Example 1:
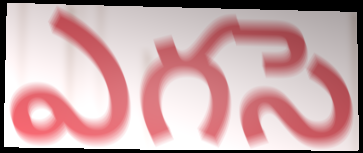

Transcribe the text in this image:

ఎగసె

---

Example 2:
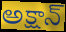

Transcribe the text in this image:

అక్షాన్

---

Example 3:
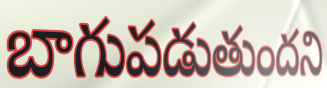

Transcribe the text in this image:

బాగుపడుతుందని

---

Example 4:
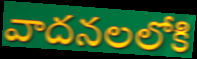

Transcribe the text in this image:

వాదనలలోకి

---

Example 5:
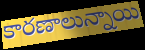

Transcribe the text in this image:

కారణాలున్నాయి